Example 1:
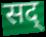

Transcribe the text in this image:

सद्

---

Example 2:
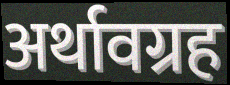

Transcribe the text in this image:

अर्थावग्रह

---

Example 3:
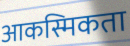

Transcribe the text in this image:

आकस्मिकता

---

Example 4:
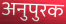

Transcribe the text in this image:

अनुपुरक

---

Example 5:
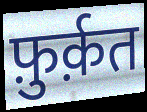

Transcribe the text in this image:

फ़ुर्क़त